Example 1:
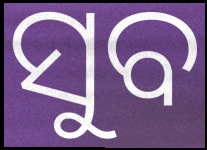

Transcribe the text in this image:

ସୁବ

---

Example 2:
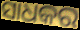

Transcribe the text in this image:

ସାଧକର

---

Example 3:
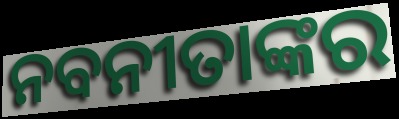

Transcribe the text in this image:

ନବନୀତାଙ୍କର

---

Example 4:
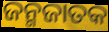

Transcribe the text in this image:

ଜନ୍ମଜାତକ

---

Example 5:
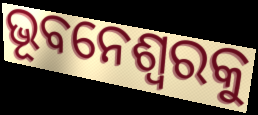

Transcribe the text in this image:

ଭୂବନେଶ୍ୱରକୁ